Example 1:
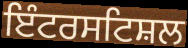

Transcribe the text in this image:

ਇੰਟਰਸਟਿਸ਼ਲ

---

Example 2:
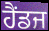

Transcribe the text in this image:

ਹੈਂਡਜ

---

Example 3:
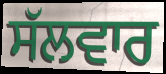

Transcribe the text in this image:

ਸੱਲਵਾਰ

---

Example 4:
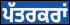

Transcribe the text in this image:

ਪੱਤਰਕਰਾਂ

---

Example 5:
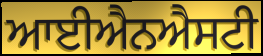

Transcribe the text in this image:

ਆਈਐਨਐਸਟੀ